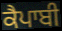
ਕੈਪਾਬੀ